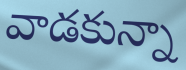
వాడకున్నా